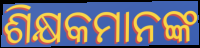
ଶିକ୍ଷକମାନଙ୍କ